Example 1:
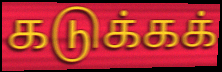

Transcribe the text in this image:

கடுக்கக்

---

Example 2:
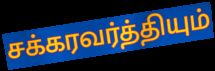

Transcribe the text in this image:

சக்கரவர்த்தியும்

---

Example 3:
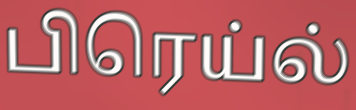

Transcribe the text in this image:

பிரெய்ல்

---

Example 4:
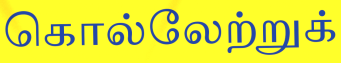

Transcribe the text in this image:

கொல்லேற்றுக்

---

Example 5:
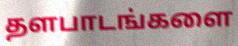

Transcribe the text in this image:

தளபாடங்களை